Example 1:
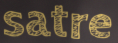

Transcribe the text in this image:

satre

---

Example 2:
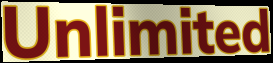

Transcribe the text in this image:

Unlimited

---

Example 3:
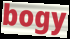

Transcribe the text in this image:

bogy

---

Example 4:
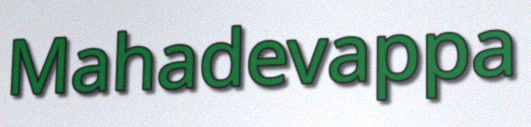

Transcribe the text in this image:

Mahadevappa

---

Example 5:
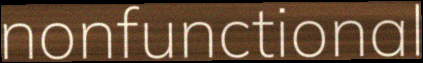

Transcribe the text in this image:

nonfunctional